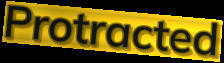
Protracted